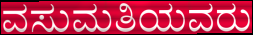
ವಸುಮತಿಯವರು